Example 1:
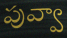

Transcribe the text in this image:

పువ్వా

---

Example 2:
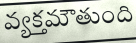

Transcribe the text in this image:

వ్యక్తమౌతుంది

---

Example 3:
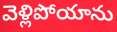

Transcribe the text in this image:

వెళ్లిపోయాను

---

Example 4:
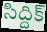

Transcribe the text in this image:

సిద్దిక్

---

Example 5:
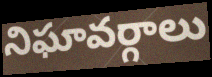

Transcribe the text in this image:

నిఘావర్గాలు